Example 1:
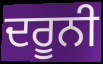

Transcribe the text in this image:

ਦਰੂਨੀ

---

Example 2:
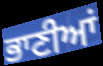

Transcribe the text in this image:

ਭਾਣੀਆਂ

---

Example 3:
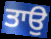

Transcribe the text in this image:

ਤਾਉ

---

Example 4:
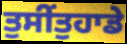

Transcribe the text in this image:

ਤੁਸੀਂਤੁਹਾਡੇ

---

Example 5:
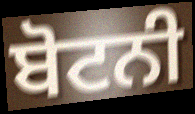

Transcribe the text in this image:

ਬੋਟਨੀ